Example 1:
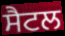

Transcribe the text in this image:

ਸੈਟਲ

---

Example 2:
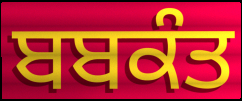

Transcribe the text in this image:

ਬਬਕੰਤ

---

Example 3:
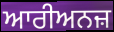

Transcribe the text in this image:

ਆਰੀਅਨਜ਼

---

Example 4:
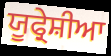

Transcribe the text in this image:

ਯੂਫ੍ਰੇਸ਼ੀਆ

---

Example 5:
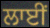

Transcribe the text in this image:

ਲਾਈਂ